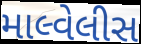
માલ્વેલીસ